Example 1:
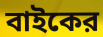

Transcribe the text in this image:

বাইকের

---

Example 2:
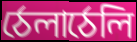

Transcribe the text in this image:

ঠেলাঠেলি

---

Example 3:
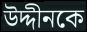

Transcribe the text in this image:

উদ্দীনকে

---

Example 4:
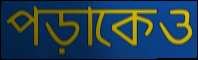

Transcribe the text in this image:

পড়াকেও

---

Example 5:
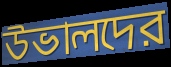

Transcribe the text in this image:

উভালদের